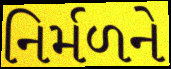
નિર્મળને